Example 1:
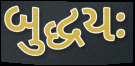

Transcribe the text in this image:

બુદ્ધયઃ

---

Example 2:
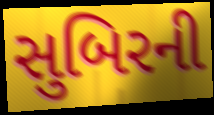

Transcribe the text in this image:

સુબિરની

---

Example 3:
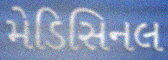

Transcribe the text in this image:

મેડિસિનલ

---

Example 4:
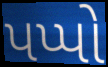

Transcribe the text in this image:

પપ્પો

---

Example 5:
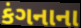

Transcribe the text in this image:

કંગનાના